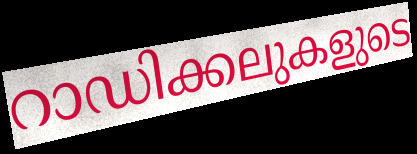
റാഡിക്കലുകളുടെ